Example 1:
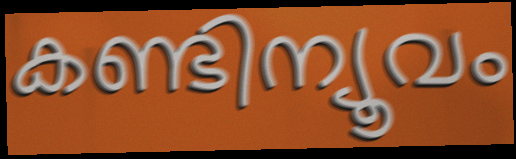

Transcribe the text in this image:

കണ്ടിന്യൂവം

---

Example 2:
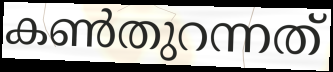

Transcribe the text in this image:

കൺതുറന്നത്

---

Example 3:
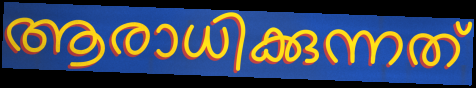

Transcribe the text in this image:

ആരാധിക്കുന്നത്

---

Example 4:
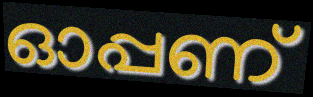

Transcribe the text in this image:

ഓപ്പണ്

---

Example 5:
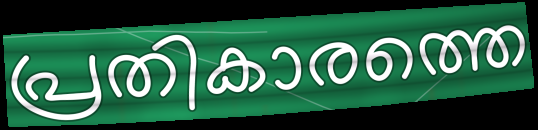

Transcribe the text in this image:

പ്രതികാരത്തെ